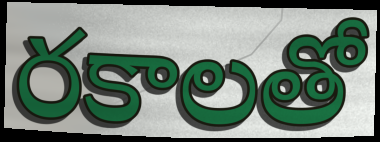
రకాలతో